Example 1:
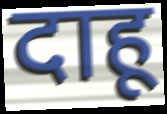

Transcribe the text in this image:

दाहू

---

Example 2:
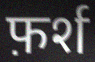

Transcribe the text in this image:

फ़र्श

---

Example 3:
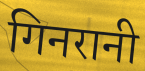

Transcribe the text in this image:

गिनरानी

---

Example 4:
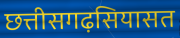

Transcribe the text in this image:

छत्तीसगढ़सियासत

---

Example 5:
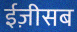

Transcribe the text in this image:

ईज़ीसब